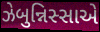
ઝેબુન્નિસ્સાએ